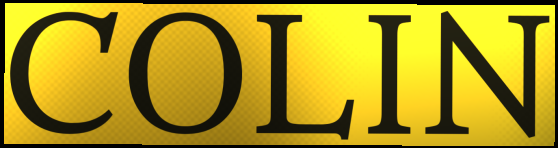
COLIN